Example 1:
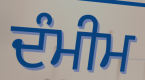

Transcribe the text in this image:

ਦੰਮੀਮ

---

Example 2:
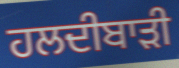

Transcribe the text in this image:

ਹਲਦੀਬਾੜੀ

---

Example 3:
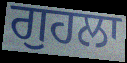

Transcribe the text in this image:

ਗੁਹਲਾ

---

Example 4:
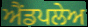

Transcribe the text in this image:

ਐਂਡਪਲੇਅ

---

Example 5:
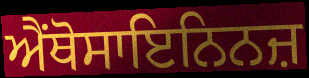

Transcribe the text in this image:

ਐਂਥੋਸਾਇਨਿਨਜ਼